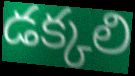
డక్కలి